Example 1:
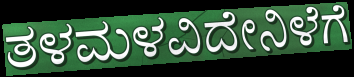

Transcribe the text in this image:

ತಳಮಳವಿದೇನಿಳೆಗೆ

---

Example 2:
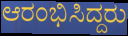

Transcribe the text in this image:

ಆರಂಭಿಸಿದ್ದರು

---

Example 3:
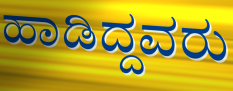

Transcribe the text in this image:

ಹಾಡಿದ್ದವರು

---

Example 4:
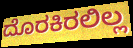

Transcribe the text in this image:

ದೊರಕಿರಲಿಲ್ಲ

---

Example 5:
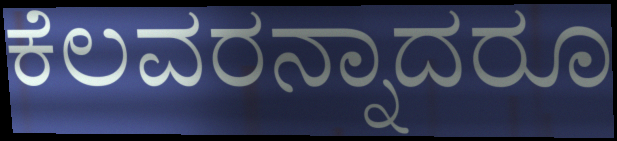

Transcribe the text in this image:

ಕೆಲವರನ್ನಾದರೂ